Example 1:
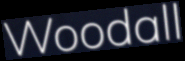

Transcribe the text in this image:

Woodall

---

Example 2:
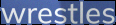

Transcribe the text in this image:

wrestles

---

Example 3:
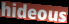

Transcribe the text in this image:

hideous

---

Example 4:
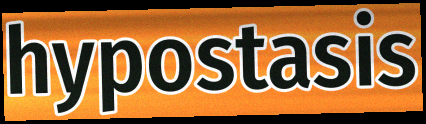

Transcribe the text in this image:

hypostasis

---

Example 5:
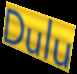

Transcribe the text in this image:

Dulu